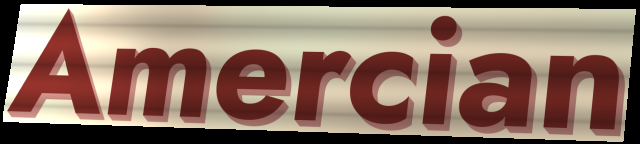
Amercian